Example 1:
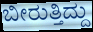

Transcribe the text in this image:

ಬೀರುತ್ತಿದ್ದು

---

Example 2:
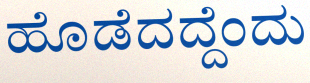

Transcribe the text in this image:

ಹೊಡೆದದ್ದೆಂದು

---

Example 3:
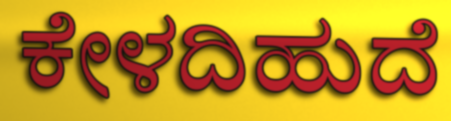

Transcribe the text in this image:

ಕೇಳದಿಹುದೆ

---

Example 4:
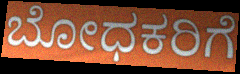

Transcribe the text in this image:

ಬೋಧಕರಿಗೆ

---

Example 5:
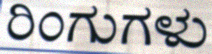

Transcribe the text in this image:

ರಿಂಗುಗಳು